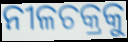
ନୀଳଚକ୍ରକୁ